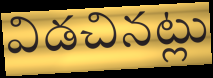
విడచినట్లు